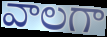
వాలగా